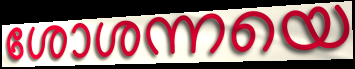
ശോശന്നയെ